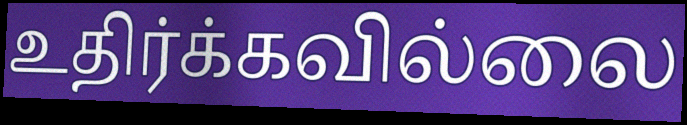
உதிர்க்கவில்லை